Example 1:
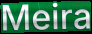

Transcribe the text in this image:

Meira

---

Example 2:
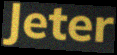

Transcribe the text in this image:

Jeter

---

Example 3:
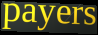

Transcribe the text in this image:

payers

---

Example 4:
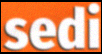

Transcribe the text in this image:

sedi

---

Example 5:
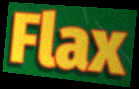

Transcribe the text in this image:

Flax